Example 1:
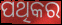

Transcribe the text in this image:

ପଥିକର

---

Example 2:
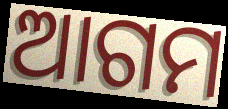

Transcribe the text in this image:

ଆଗମ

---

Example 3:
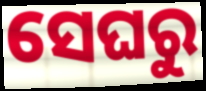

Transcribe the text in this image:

ସେଘରୁ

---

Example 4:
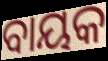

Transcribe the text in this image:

ବାୟକ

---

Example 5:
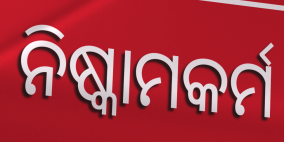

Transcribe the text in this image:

ନିଷ୍କାମକର୍ମ